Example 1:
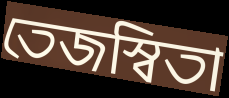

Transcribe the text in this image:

তেজস্বিতা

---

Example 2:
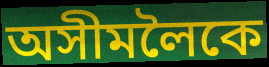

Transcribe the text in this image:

অসীমলৈকে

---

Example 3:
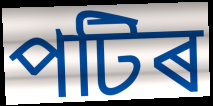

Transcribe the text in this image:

পটিৰ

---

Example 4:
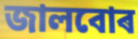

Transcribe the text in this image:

জালবোৰ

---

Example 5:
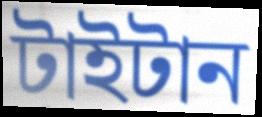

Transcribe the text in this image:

টাইটান